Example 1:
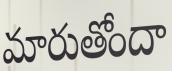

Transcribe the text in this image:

మారుతోందా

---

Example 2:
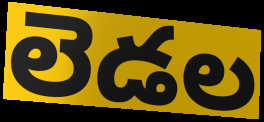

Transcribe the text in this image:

లెడల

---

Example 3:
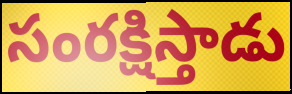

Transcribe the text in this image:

సంరక్షిస్తాడు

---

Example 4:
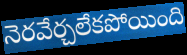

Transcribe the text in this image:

నెరవేర్చలేకపోయింది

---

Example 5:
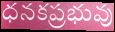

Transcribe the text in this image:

ధనకప్రభువు